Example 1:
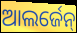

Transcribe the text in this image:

ଆଲର୍ଜେନ୍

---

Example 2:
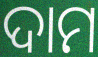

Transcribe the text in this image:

ଦାମ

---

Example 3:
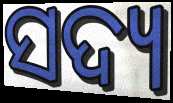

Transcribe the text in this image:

ସଦ୍ୟ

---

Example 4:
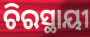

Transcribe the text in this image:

ଚିରସ୍ଥାୟୀ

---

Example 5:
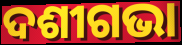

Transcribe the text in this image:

ଦଶୀଗଭା